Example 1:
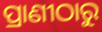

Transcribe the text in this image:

ପ୍ରାଣୀଠାରୁ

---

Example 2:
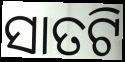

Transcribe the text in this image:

ସାତଟି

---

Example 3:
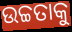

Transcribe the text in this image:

ଉଚ୍ଚତାକୁ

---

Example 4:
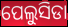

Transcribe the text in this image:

ପେଲୁସିଡା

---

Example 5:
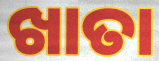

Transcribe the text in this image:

ଖାତା